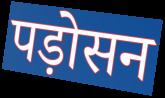
पड़ोसन